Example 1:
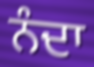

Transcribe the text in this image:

ਨੰਦਾ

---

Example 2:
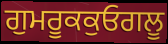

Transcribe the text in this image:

ਗੁਮਰੂਕਕੁਓਗਲੂ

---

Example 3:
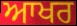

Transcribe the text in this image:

ਆਖਰ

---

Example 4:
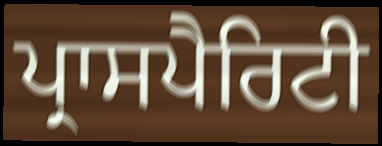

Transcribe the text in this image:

ਪ੍ਰਾਸਪੈਰਿਟੀ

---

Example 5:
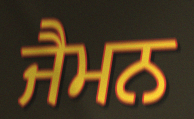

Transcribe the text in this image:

ਜੈਮਨ